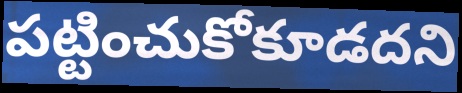
పట్టించుకోకూడదని